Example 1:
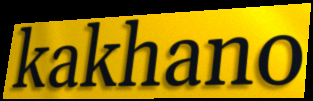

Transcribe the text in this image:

kakhano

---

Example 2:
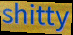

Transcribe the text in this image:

shitty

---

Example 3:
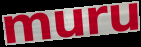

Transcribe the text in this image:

muru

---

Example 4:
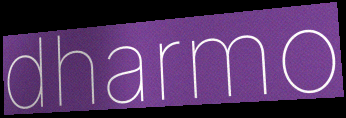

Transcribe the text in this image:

dharmo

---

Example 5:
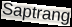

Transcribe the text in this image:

Saptrang